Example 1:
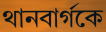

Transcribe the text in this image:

থানবার্গকে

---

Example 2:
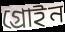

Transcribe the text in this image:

গ্রোইন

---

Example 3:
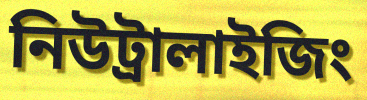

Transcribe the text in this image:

নিউট্রালাইজিং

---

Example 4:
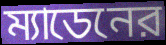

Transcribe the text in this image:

ম্যাডেনের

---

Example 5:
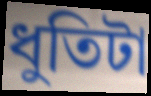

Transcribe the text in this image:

ধুতিটা